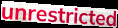
unrestricted